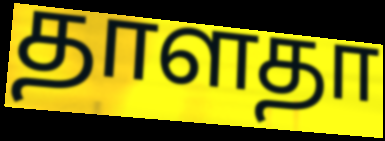
தாளதா